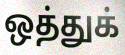
ஒத்துக்